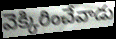
వెక్కిరించేవాడు